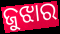
ଜୁଝାର